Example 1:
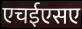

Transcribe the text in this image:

एचईएसए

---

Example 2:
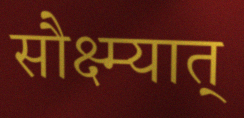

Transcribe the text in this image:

सौक्ष्म्यात्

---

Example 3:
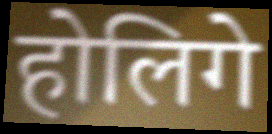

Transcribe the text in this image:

होलिगे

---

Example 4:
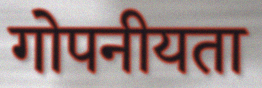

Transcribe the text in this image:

गोपनीयता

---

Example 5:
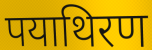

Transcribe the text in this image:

पयाथिरण